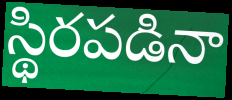
స్థిరపడినా